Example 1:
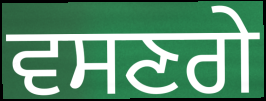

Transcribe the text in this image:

ਵਸਣਗੇ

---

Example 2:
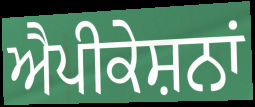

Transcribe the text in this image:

ਐਪੀਕੇਸ਼ਨਾਂ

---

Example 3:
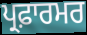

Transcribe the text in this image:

ਪ੍ਰਫ਼ਾਰਮਰ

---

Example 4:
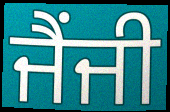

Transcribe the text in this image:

ਜੈਂਜੀ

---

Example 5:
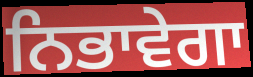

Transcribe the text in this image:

ਨਿਭਾਵੇਗਾ